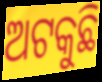
ଅଟକୁଛି